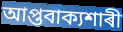
আপ্তবাক্যশাৰী